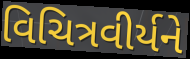
વિચિત્રવીર્યને